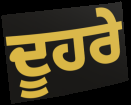
ਦੂਹਰੇ